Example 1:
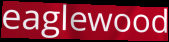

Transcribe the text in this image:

eaglewood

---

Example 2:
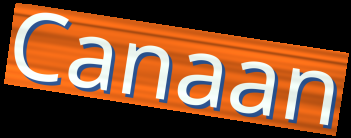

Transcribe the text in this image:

Canaan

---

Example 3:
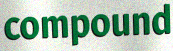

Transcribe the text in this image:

compound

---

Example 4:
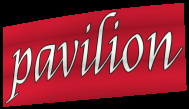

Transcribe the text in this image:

pavilion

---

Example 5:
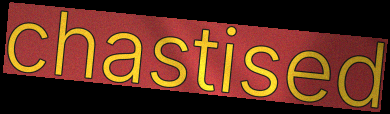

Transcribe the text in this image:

chastised